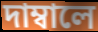
দাম্বালে